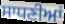
ਸਾਧਣੀਆਂ